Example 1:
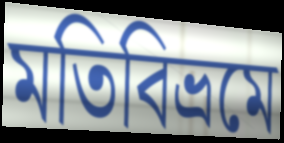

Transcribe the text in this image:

মতিবিভ্রমে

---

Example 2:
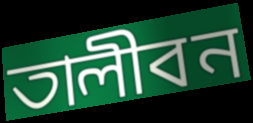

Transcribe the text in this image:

তালীবন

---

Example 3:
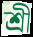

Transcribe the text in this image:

শ্রী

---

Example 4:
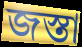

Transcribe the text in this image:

জস্তা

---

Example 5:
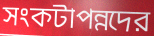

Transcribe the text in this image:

সংকটাপন্নদের